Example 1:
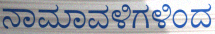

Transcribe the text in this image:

ನಾಮಾವಳಿಗಳಿಂದ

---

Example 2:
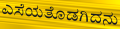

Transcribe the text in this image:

ಎಸೆಯತೊಡಗಿದನು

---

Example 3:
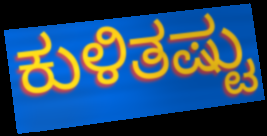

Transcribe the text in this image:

ಕುಳಿತಷ್ಟು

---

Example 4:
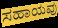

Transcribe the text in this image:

ಸಹಾಯವು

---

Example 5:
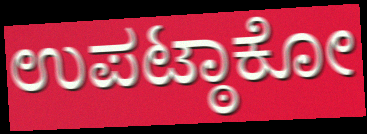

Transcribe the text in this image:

ಉಪಟ್ಠಾಕೋ